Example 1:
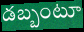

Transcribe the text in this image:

డబ్బంటూ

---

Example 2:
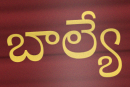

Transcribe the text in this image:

బాల్యే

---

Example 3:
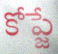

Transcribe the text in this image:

కోప్జే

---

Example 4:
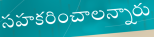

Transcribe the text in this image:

సహకరించాలన్నారు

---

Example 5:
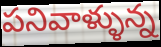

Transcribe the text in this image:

పనివాళ్ళున్న